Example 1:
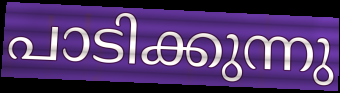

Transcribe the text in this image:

പാടിക്കുന്നു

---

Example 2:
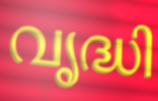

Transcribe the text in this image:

വൃദ്ധി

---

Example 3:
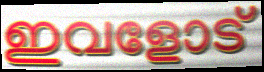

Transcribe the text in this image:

ഇവളോട്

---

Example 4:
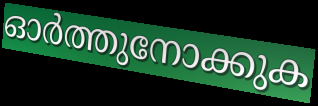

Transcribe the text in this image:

ഓർത്തുനോക്കുക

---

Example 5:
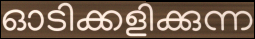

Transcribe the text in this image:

ഓടിക്കളിക്കുന്ന